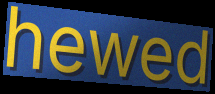
hewed